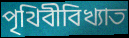
পৃথিবীবিখ্যাত